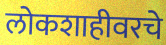
लोकशाहीवरचे